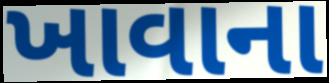
ખાવાના